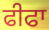
ਫੀਫਾ